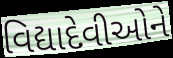
વિદ્યાદેવીઓને